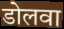
डोलवा